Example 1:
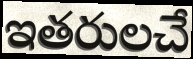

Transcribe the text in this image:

ఇతరులచే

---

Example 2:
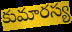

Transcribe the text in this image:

కుమారస్య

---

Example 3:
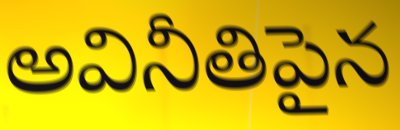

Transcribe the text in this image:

అవినీతిపైన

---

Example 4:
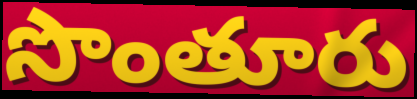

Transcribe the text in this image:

సొంతూరు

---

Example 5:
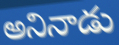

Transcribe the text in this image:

అనినాడు